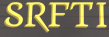
SRFTI